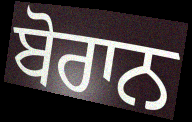
ਬੋਰਾਨ